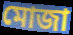
মোজা